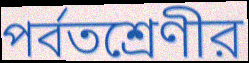
পর্বতশ্রেণীর